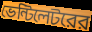
ভেন্টিলেটরের